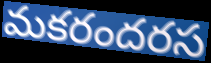
మకరందరస